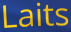
Laits